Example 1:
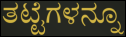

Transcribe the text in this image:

ತಟ್ಟೆಗಳನ್ನೂ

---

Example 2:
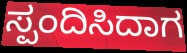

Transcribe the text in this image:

ಸ್ಪಂದಿಸಿದಾಗ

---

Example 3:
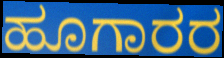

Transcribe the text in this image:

ಹೂಗಾರರ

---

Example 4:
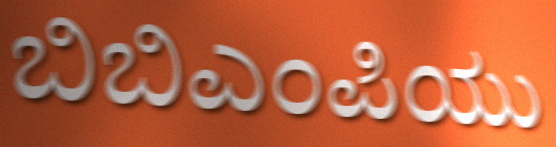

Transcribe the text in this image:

ಬಿಬಿಎಂಪಿಯು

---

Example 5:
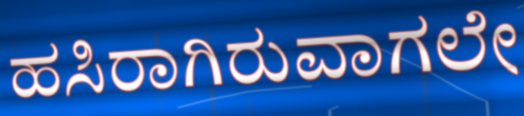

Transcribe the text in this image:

ಹಸಿರಾಗಿರುವಾಗಲೇ